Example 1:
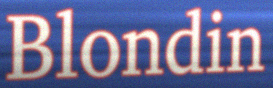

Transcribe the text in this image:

Blondin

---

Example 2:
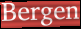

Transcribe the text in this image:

Bergen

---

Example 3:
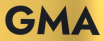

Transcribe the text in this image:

GMA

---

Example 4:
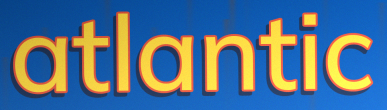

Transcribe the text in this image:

atlantic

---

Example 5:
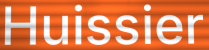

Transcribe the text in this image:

Huissier